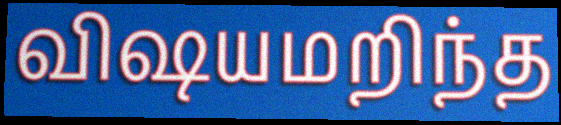
விஷயமறிந்த